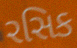
રસિક